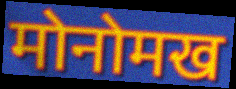
मोनोमख